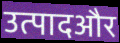
उत्पादऔर